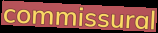
commissural